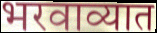
भरवाव्यात